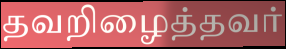
தவறிழைத்தவர்